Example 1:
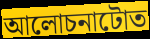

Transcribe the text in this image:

আলোচনাটোত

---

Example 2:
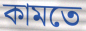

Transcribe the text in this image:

কামতে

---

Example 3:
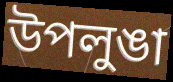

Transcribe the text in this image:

উপলুঙা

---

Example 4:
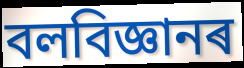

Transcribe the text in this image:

বলবিজ্ঞানৰ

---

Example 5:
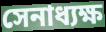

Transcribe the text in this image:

সেনাধ্যক্ষ